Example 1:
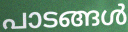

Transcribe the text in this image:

പാടങ്ങൾ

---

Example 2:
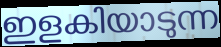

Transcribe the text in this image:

ഇളകിയാടുന്ന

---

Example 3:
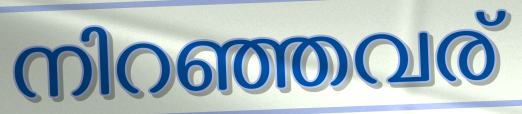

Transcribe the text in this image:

നിറഞ്ഞവര്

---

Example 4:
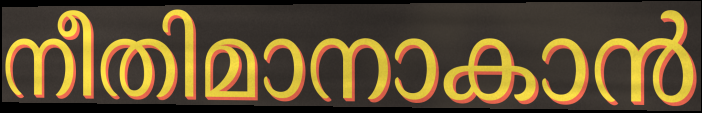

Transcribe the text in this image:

നീതിമാനാകാൻ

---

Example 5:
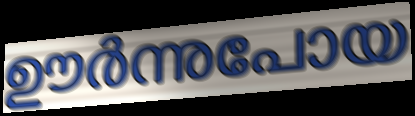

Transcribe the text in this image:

ഊർന്നുപോയ